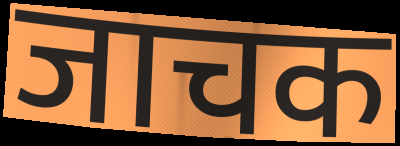
जाचक